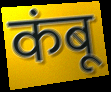
कंबू